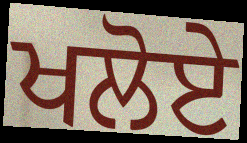
ਖਲੋਏ